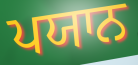
ਪਯਾਨ